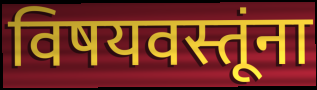
विषयवस्तूंना